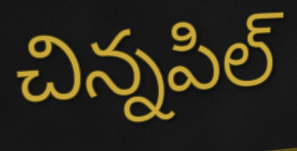
చిన్నపిల్